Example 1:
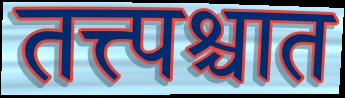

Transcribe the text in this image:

तत्त्पश्चात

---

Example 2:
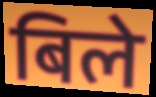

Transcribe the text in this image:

बिले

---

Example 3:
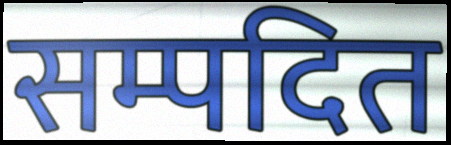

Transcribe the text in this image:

सम्पदित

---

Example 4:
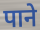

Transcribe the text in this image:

पाने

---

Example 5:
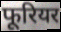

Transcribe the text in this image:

फूरियर